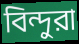
বিন্দুরা